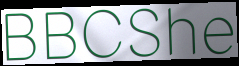
BBCShe